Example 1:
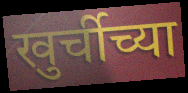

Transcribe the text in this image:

खुर्चीच्या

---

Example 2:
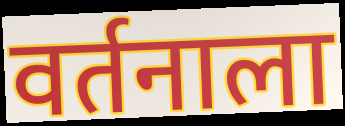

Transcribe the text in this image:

वर्तनाला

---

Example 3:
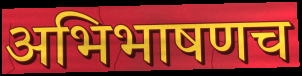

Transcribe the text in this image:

अभिभाषणच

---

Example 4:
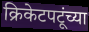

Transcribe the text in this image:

क्रिकेटपटूंच्या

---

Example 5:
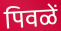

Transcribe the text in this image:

पिवळें